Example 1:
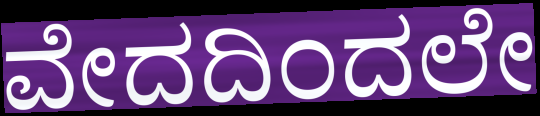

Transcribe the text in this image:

ವೇದದಿಂದಲೇ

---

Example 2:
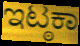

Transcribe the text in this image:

ಇಟ್ಠಕಾ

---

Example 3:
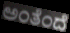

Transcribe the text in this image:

ಅಂತೆಂದೆ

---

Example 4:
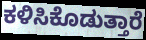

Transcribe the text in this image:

ಕಳಿಸಿಕೊಡುತ್ತಾರೆ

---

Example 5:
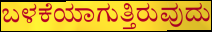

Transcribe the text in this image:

ಬಳಕೆಯಾಗುತ್ತಿರುವುದು